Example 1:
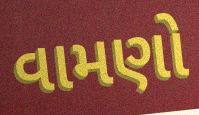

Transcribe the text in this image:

વામણો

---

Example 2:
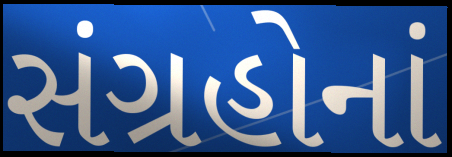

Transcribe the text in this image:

સંગ્રહોનાં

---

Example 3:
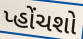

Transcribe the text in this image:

પ્હોંચશો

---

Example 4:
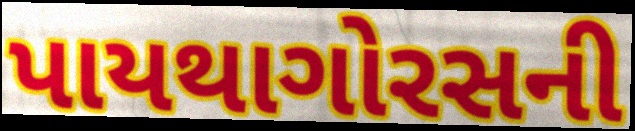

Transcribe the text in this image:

પાયથાગોરસની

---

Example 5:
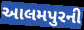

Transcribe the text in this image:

આલમપુરની